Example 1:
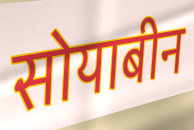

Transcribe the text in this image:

सोयाबीन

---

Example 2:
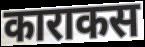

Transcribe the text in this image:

काराकस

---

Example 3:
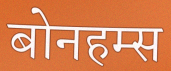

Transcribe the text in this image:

बोनहम्स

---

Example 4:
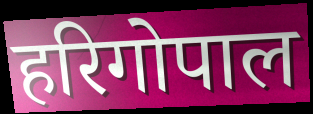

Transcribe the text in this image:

हरिगोपाल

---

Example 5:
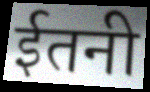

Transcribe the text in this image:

ईतनी